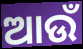
ଆଉଁ